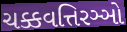
ચક્કવત્તિરઞ્ઞો